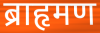
ब्राहृमण